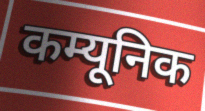
कम्यूनिक